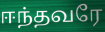
ஈந்தவரே